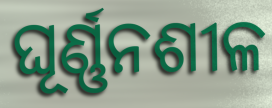
ଘୂର୍ଣ୍ଣନଶୀଳ